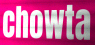
chowta